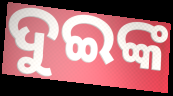
ଦୁଇଙ୍କ